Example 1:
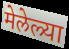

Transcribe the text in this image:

मेलेल्या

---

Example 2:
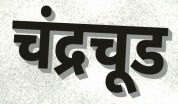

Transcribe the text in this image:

चंद्रचूड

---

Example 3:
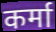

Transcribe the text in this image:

कर्मा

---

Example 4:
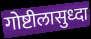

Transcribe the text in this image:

गोष्टीलासुध्दा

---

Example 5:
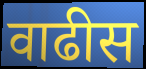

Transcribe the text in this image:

वाढीस